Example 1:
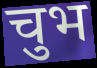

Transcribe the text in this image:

चुभ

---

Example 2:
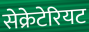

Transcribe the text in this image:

सेक्रेटेरियट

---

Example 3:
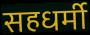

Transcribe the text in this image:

सहधर्मी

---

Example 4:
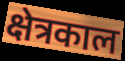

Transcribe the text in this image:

क्षेत्रकाल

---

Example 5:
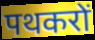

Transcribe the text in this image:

पथकरों